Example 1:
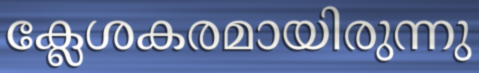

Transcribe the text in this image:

ക്ലേശകരമായിരുന്നു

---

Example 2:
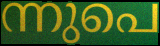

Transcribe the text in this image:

ന്നുപെ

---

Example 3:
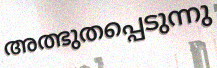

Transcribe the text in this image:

അത്ഭുതപ്പെടുന്നു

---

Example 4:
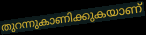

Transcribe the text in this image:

തുറന്നുകാണിക്കുകയാണ്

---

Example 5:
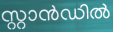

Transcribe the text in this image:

സ്റ്റാൻഡിൽ